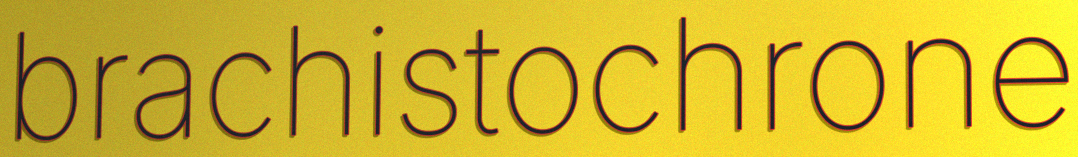
brachistochrone